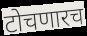
टोचणारच